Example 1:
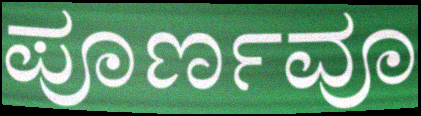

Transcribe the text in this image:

ಪೂರ್ಣವೂ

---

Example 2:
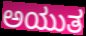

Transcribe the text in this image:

ಅಯುತ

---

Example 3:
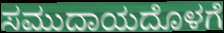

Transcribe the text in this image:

ಸಮುದಾಯದೊಳಗೆ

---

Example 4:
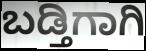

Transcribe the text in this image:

ಬಡ್ತಿಗಾಗಿ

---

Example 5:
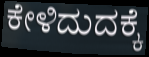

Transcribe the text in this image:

ಕೇಳಿದುದಕ್ಕೆ